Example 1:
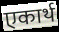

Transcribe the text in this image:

एकार्थ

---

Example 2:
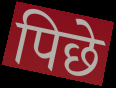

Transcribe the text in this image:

पिछे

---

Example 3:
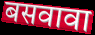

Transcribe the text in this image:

बसवावा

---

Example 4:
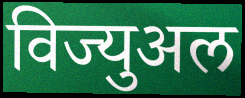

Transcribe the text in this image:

विज्युअल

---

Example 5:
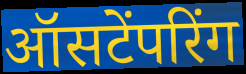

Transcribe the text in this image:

ऑसटेंपरिंग